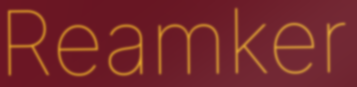
Reamker